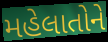
મહેલાતોને